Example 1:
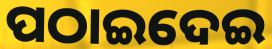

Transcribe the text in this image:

ପଠାଇଦେଇ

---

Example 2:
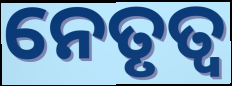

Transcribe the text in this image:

ନେତୃତ୍ଵ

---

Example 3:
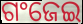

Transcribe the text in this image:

ଗଂଜେଇ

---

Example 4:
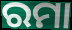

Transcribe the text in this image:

ରମା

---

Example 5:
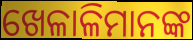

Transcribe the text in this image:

ଖେଳାଳିମାନଙ୍କ